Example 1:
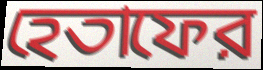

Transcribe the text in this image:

হেতাফের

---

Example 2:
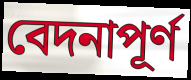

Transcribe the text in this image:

বেদনাপূর্ণ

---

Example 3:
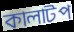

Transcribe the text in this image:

কালাটপ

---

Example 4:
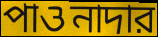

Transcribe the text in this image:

পাওনাদার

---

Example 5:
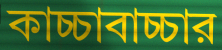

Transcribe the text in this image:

কাচ্চাবাচ্চার